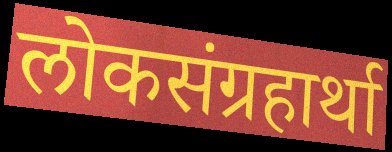
लोकसंग्रहार्था